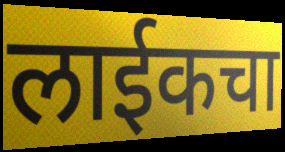
लाईकचा